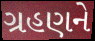
ગ્રહણને